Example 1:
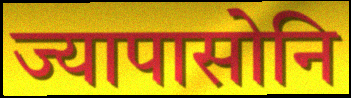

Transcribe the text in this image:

ज्यापासोनि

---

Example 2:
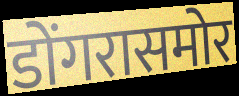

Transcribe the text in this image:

डोंगरासमोर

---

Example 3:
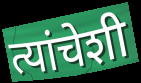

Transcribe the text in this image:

त्यांचेशी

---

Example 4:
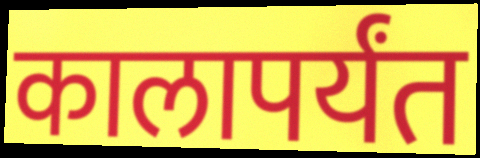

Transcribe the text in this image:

कालापर्यंत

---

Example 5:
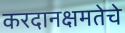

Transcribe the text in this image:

करदानक्षमतेचे